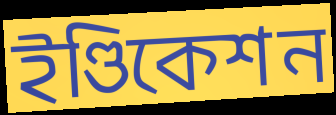
ইণ্ডিকেশন